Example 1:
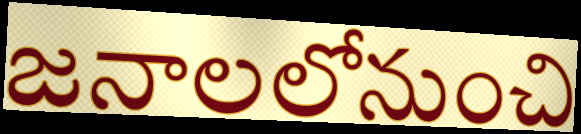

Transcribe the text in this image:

జనాలలోనుంచి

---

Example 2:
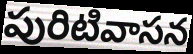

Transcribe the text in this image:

పురిటివాసన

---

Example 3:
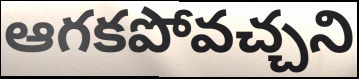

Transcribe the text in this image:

ఆగకపోవచ్చని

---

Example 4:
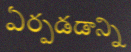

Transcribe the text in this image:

ఏర్పడడాన్ని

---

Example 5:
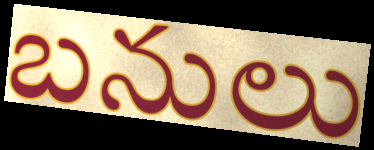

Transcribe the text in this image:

బనులు